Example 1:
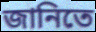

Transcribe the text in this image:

জানিতে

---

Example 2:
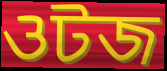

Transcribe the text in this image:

ওটজ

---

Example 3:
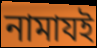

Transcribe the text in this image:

নামাযই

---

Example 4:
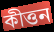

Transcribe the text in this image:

কীত্তন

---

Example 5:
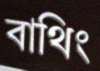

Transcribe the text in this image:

বাথিং